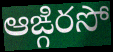
ఆఙ్గిరసో